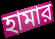
হামার